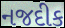
નજદીક